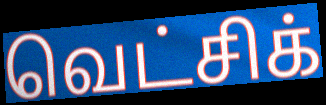
வெட்சிக்